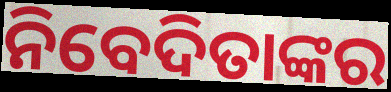
ନିବେଦିତାଙ୍କର